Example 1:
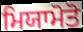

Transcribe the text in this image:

ਮਿਯਾਮੋਤੋ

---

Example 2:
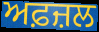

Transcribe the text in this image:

ਅਫ਼ਜ਼ਲ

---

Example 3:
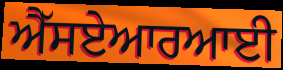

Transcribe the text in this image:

ਐੱਸਏਆਰਆਈ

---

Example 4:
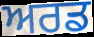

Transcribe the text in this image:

ਅਰਡ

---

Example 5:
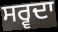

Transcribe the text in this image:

ਸਰ੍ਵਦਾ